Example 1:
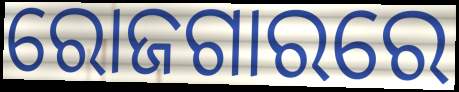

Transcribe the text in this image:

ରୋଜଗାରରେ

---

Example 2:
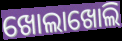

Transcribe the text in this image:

ଖୋଲାଖୋଲି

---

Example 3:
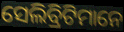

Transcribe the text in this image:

ସେଲିବ୍ରିଟିମାନେ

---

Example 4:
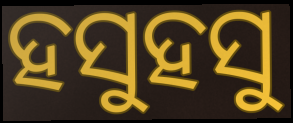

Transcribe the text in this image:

ହସୁହସୁ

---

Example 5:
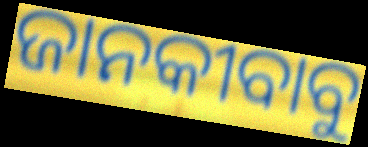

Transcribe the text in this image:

ଜାନକୀବାବୁ